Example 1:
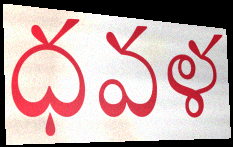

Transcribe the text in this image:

ధవళ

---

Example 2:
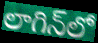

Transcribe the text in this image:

లాగిన్‌లో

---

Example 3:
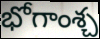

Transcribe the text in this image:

భోగాంశ్చ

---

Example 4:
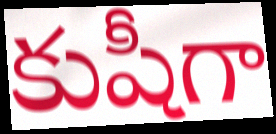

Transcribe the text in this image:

కుషీగా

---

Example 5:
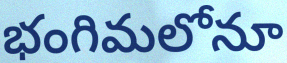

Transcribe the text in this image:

భంగిమలోనూ